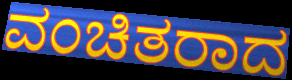
ವಂಚಿತರಾದ